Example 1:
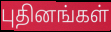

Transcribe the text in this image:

புதினங்கள்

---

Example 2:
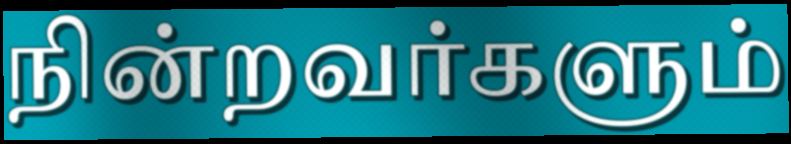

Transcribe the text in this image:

நின்றவர்களும்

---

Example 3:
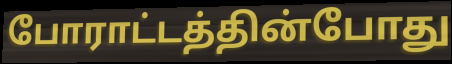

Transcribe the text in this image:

போராட்டத்தின்போது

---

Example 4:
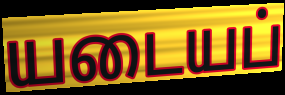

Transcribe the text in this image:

யடையப்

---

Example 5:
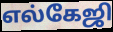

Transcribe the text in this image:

எல்கேஜி